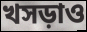
খসড়াও